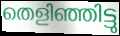
തെളിഞ്ഞിട്ടു